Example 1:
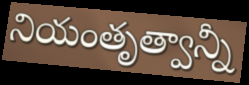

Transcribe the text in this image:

నియంతృత్వాన్నీ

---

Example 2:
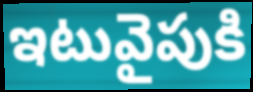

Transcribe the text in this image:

ఇటువైపుకి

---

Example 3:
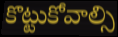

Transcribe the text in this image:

కొట్టుకోవాల్సి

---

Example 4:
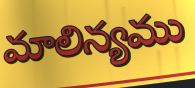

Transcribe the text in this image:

మాలిన్యము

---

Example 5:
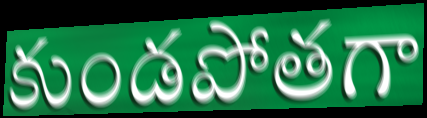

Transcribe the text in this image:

కుండపోతగా